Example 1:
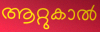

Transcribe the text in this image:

ആറ്റുകാൽ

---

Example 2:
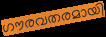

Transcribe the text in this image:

ഗൗരവതരമായി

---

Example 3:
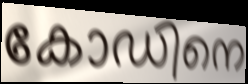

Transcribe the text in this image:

കോഡിനെ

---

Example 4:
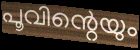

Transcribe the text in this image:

പൂവിന്റെയും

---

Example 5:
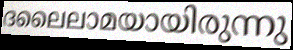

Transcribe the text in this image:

ദലൈലാമയായിരുന്നു